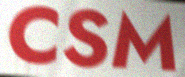
CSM